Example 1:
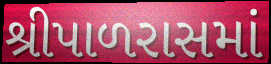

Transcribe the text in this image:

શ્રીપાળરાસમાં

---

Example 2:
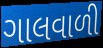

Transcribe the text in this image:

ગાલવાળી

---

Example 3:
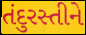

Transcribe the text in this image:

તંદુરસ્તીને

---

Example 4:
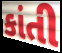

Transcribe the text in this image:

કાંતી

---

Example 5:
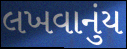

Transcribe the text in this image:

લખવાનુંય